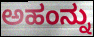
ಅಹಂನ್ನು